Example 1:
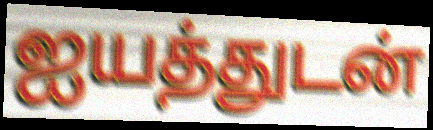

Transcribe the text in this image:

ஐயத்துடன்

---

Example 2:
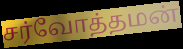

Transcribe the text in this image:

சர்வோத்தமன்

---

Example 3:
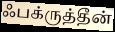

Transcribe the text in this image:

ஃபக்ருத்தீன்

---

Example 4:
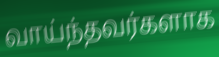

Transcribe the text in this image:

வாய்ந்தவர்களாக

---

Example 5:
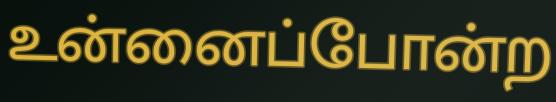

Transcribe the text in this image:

உன்னைப்போன்ற